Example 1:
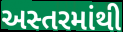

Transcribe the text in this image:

અસ્તરમાંથી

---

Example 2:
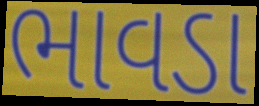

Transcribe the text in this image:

ભાવડા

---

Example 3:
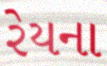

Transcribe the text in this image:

રેયના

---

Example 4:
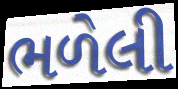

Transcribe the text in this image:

ભળેલી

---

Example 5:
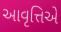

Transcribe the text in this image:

આવૃત્તિએ